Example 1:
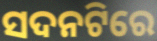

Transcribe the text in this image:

ସଦନଟିରେ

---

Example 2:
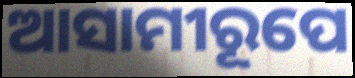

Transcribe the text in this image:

ଆସାମୀରୂପେ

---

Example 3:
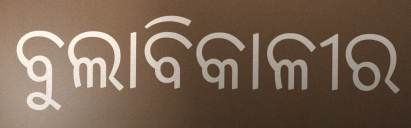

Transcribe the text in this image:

ବୁଲାବିକାଳୀର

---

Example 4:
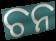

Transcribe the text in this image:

ଚନ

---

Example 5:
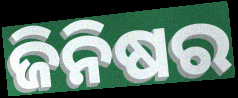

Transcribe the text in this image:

ଜିନିଷର